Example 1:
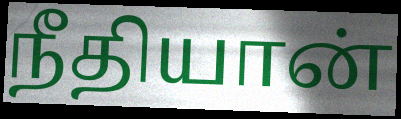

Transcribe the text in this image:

நீதியான்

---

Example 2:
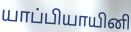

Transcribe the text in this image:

யாப்பியாயினி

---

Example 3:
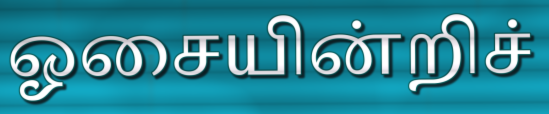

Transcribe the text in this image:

ஓசையின்றிச்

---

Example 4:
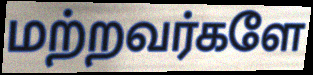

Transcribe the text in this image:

மற்றவர்களே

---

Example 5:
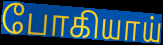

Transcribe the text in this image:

போகியாய்